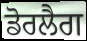
ਡੋਰਲੈਗ